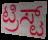
ಟ್ರಿಸ್ಟ್